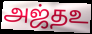
அஜ்தஉ